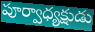
పూర్వాధ్యక్షుడు